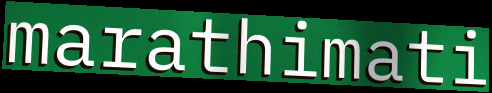
marathimati